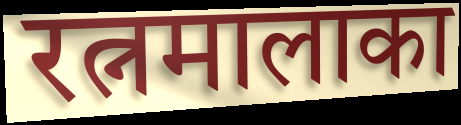
रत्नमालाका